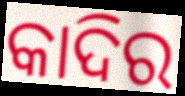
କାଦିର